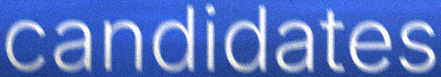
candidates